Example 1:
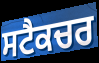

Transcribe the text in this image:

ਸਟੈਕਚਰ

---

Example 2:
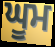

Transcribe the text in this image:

ਘੂਮ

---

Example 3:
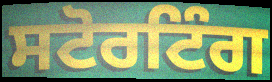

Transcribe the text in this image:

ਸਟੋਰਟਿੰਗ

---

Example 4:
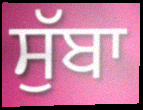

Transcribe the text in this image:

ਸੁੱਬਾ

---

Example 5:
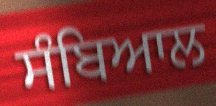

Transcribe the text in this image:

ਸੰਬਿਆਲ